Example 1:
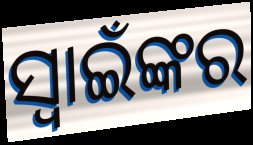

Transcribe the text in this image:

ସ୍ୱାଇଁଙ୍କର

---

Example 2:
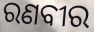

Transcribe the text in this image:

ରଣବୀର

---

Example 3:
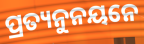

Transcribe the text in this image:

ପ୍ରତ୍ୟନୁନୟନେ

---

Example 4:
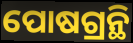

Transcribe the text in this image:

ପୋଷଗ୍ରନ୍ଥି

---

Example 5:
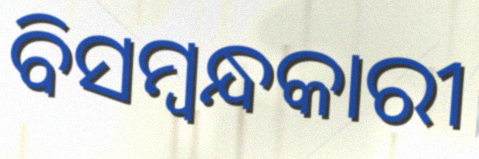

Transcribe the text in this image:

ବିସମ୍ବନ୍ଧକାରୀ